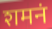
शमनं